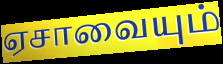
ஏசாவையும்